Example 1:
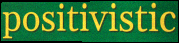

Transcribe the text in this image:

positivistic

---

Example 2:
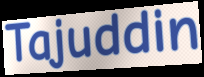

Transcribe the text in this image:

Tajuddin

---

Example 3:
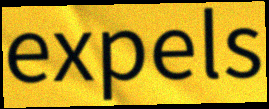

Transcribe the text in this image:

expels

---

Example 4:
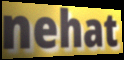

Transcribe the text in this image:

nehat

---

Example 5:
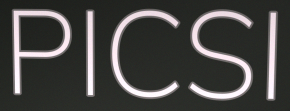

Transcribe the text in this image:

PICSI